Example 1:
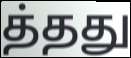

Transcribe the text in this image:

த்தது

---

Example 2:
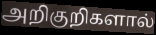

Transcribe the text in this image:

அறிகுறிகளால்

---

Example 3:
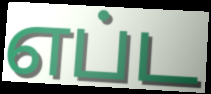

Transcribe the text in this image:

எப்ட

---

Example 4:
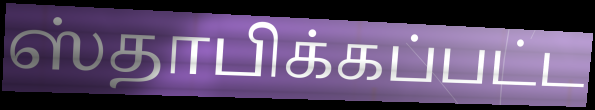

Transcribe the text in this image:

ஸ்தாபிக்கப்பட்ட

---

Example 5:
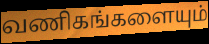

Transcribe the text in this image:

வணிகங்களையும்